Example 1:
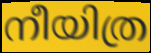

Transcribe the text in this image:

നീയിത്ര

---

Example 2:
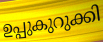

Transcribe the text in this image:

ഉപ്പുകുറുക്കി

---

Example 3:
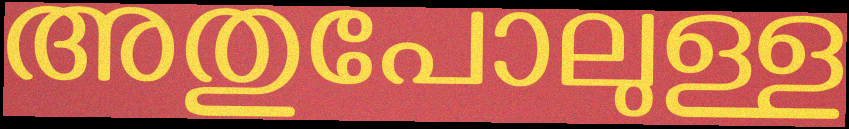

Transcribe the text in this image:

അതുപോലുള്ള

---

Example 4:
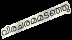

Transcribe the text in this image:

വീരചരമമടഞ്ഞു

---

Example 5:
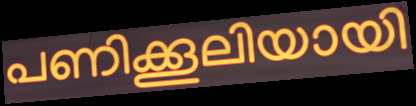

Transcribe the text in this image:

പണിക്കൂലിയായി